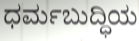
ಧರ್ಮಬುದ್ಧಿಯ